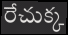
రేచుక్క